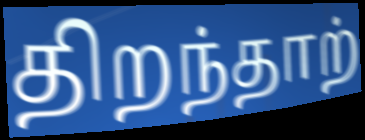
திறந்தாற்